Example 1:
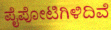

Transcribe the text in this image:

ಪೈಪೋಟಿಗಿಳಿದಿವೆ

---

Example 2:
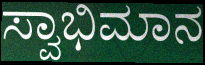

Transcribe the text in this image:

ಸ್ವಾಭಿಮಾನ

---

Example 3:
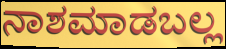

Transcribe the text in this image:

ನಾಶಮಾಡಬಲ್ಲ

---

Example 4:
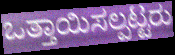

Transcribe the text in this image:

ಒತ್ತಾಯಿಸಲ್ಪಟ್ಟರು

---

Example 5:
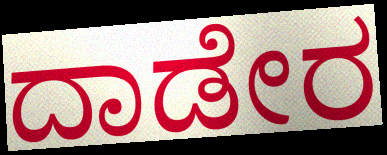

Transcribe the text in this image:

ದಾಡೇರ